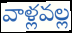
వాళ్లవల్ల